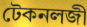
টেকনলজী